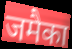
जमैका